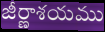
జీర్ణాశయము